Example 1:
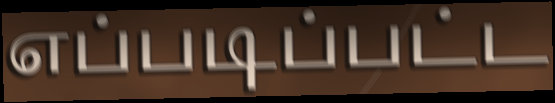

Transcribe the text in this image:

எப்படிப்பட்ட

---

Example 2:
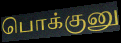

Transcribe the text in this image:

பொக்குனு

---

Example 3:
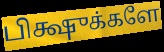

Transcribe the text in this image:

பிக்ஷுக்களே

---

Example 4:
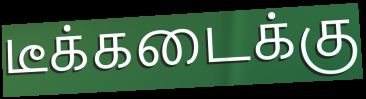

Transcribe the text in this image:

டீக்கடைக்கு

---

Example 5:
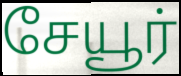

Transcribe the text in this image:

சேயூர்